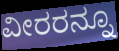
ವೀರರನ್ನೂ